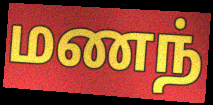
மணந்